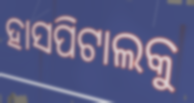
ହାସପିଟାଲକୁ